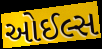
ઓઈલ્સ